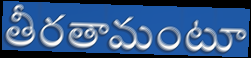
తీరతామంటూ